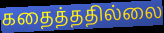
கதைத்ததில்லை